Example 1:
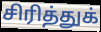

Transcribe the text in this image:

சிரித்துக்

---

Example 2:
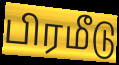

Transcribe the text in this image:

பிரமீடு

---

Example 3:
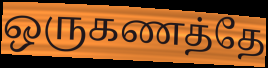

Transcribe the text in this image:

ஒருகணத்தே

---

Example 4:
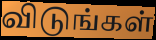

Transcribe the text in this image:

விடுங்கள்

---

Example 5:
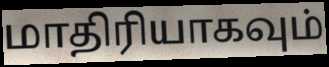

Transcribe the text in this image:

மாதிரியாகவும்